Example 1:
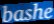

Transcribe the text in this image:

bashe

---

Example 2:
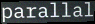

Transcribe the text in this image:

parallal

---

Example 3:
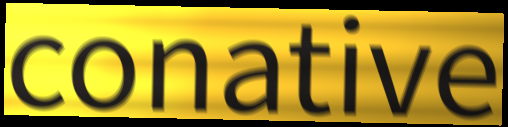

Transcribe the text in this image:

conative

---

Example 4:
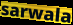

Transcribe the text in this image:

sarwala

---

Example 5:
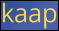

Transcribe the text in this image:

kaap